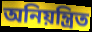
অনিয়ন্ত্রিত